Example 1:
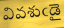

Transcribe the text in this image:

వివశుఁడై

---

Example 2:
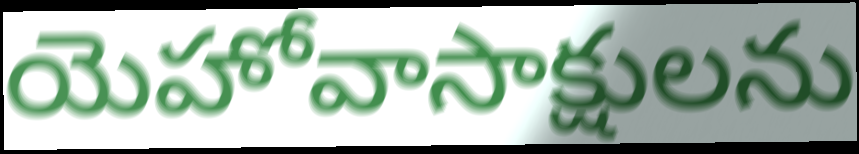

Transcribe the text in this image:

యెహోవాసాక్షులను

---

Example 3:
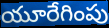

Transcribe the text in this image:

యూరేగింపు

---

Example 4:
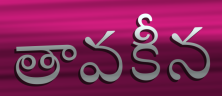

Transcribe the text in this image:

తావకీన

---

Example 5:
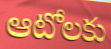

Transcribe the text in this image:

ఆటోలకు